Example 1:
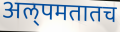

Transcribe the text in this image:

अल्पमतातच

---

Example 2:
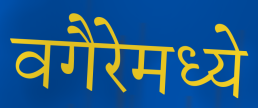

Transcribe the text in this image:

वगैरेमध्ये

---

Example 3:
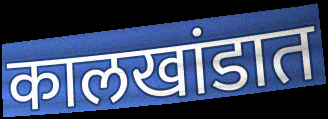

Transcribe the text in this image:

कालखांडात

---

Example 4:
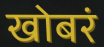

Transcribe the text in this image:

खोबरं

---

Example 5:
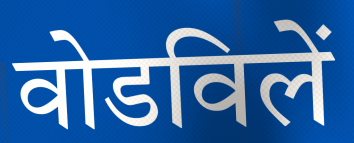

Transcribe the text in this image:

वोडविलें